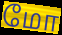
மோ